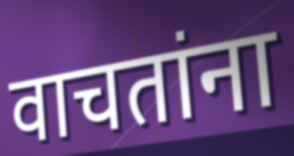
वाचतांना